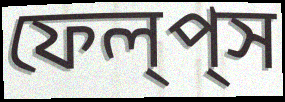
ফেল্‌প্‌স